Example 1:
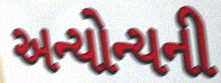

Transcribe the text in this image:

અન્યોન્યની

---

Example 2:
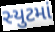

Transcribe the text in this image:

સ્યુટમાં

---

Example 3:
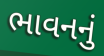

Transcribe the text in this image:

ભાવનનું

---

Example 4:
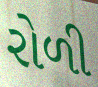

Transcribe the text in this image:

રોળી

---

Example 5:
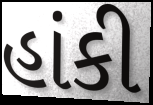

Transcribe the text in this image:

હાંકી